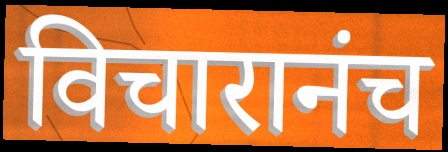
विचारानंच